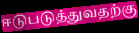
ஈடுபடுத்துவதற்கு